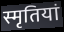
स्मृतियां